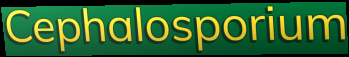
Cephalosporium